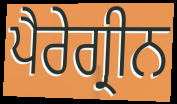
ਪੈਰੇਗ੍ਰੀਨ